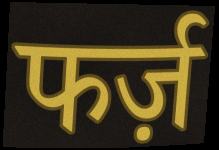
फर्ज़